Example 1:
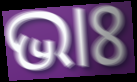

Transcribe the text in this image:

ଭାଃ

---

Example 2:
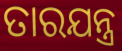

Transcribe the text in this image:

ତାରଯନ୍ତ୍ର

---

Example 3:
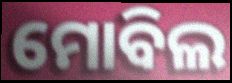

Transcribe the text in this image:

ମୋବିଲ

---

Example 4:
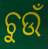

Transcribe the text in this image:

ଚୁଉଁ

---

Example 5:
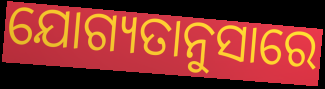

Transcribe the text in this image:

ଯୋଗ୍ୟତାନୁସାରେ